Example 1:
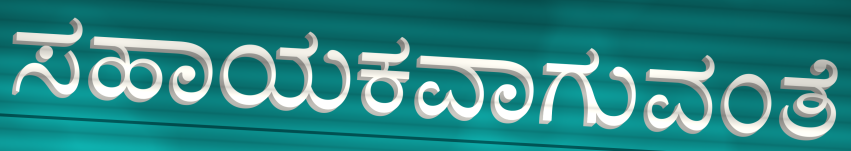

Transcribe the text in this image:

ಸಹಾಯಕವಾಗುವಂತೆ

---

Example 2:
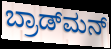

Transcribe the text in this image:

ಬ್ರಾಡ್‌ಮನ್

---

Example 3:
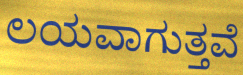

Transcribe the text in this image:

ಲಯವಾಗುತ್ತವೆ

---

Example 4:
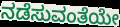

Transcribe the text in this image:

ನಡೆಸುವಂತೆಯೇ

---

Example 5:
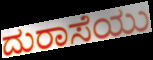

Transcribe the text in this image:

ದುರಾಸೆಯು